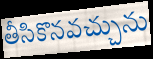
తీసికొనవచ్చును